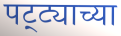
पट्ट्याच्या